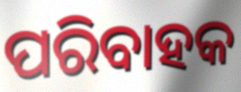
ପରିବାହକ